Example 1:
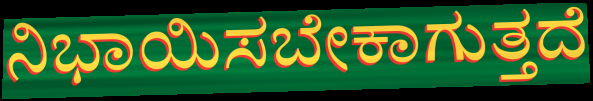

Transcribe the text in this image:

ನಿಭಾಯಿಸಬೇಕಾಗುತ್ತದೆ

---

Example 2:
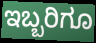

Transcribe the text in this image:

ಇಬ್ಬರಿಗೂ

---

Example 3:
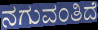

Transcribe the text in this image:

ನಗುವಂತಿದೆ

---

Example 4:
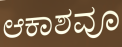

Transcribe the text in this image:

ಆಕಾಶವೂ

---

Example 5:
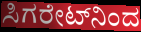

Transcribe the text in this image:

ಸಿಗರೇಟ್‌ನಿಂದ